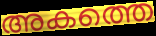
അകത്തെ